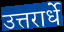
उत्तरार्धे